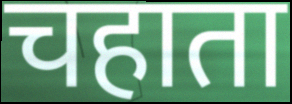
चहाता